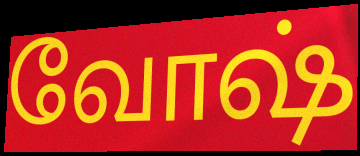
வோஷ்